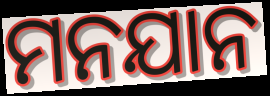
ମନଯାନ